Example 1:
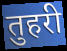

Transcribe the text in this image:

तुहरी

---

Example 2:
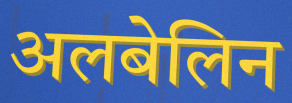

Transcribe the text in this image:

अलबेलिन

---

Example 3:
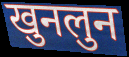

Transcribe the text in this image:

खुनलुन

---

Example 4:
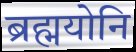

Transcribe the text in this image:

ब्रह्मयोनि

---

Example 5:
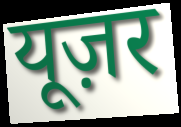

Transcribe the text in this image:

यूज़र